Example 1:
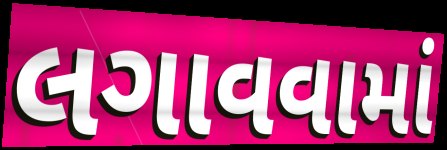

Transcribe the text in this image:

લગાવવામાં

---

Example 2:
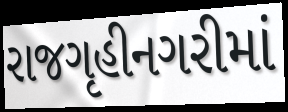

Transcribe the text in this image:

રાજગૃહીનગરીમાં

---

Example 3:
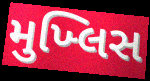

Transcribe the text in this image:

મુખ્લિસ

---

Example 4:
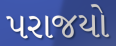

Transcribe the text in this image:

પરાજયો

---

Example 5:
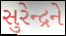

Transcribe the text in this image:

સુરેન્દ્રને